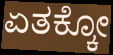
ಏತಕ್ಕೋ